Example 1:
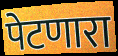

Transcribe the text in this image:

पेटणारा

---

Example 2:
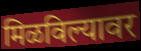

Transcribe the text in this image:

मिळविल्यावर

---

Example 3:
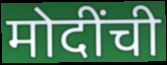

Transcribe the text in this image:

मोदींची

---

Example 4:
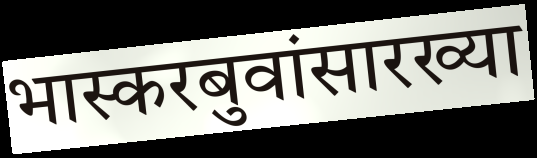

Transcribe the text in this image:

भास्करबुवांसारख्या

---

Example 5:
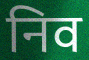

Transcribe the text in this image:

निव